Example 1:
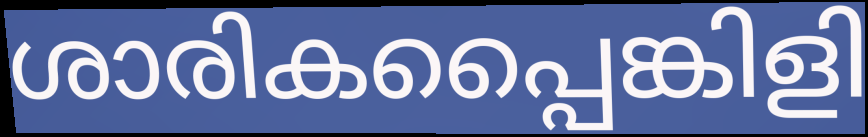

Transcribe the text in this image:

ശാരികപ്പൈങ്കിളി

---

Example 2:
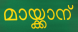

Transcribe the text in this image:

മായ്ക്കാന്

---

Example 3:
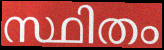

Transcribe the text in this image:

സ്ഥിതം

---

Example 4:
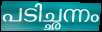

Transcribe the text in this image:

പടിച്ഛന്നം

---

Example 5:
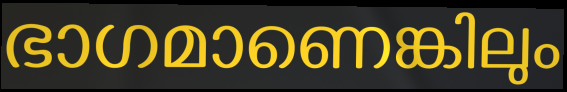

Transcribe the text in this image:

ഭാഗമാണെങ്കിലും